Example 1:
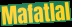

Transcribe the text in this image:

Mafatlal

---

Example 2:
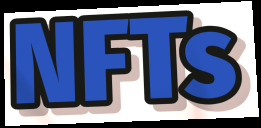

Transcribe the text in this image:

NFTs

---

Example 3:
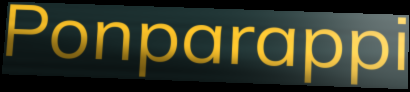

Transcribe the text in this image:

Ponparappi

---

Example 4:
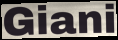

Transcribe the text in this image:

Giani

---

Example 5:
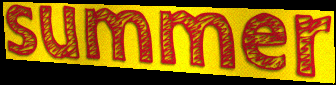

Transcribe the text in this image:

summer